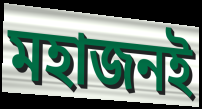
মহাজনই